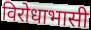
विरोधाभासी